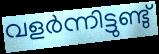
വളർന്നിട്ടുണ്ടു്